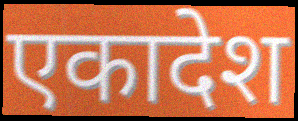
एकादेश